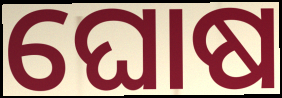
ଘୋଷ